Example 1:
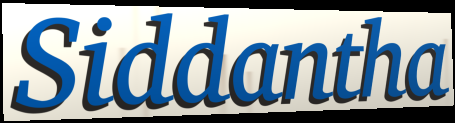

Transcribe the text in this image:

Siddantha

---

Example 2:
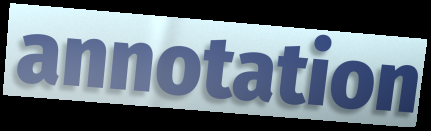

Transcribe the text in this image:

annotation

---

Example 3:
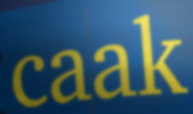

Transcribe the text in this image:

caak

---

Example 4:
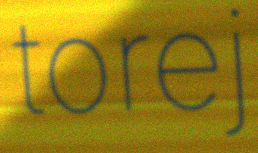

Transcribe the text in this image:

torej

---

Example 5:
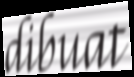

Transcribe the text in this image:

dibuat